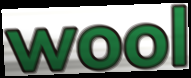
wool